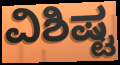
ವಿಶಿಷ್ಟ